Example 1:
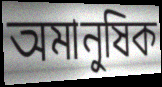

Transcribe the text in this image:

অমানুষিক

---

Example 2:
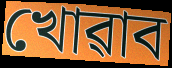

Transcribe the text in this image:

খোৱাব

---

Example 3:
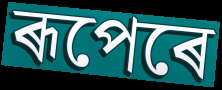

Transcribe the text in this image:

ৰূপেৰে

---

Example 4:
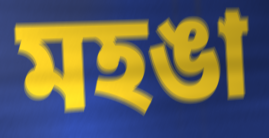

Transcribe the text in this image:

মহঙা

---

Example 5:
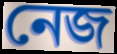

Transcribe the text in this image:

নেজ